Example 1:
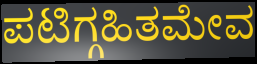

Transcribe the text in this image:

ಪಟಿಗ್ಗಹಿತಮೇವ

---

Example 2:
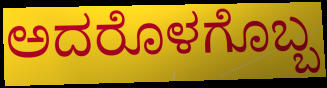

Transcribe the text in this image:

ಅದರೊಳಗೊಬ್ಬ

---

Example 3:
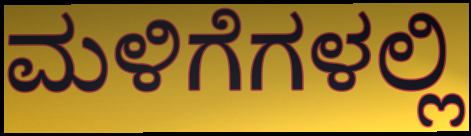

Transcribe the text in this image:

ಮಳಿಗೆಗಳಲ್ಲಿ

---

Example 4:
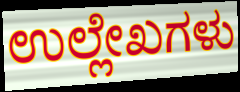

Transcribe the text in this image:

ಉಲ್ಲೇಖಗಳು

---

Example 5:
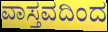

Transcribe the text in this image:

ವಾಸ್ತವದಿಂದ